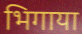
भिगाया